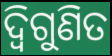
ଦ୍ୱିଗୁଣିତ